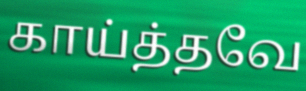
காய்த்தவே